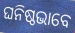
ଘନିଷ୍ଠଭାବେ